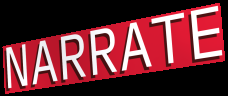
NARRATE